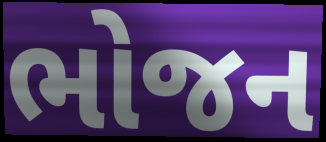
ભોજન